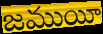
జముయీ